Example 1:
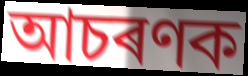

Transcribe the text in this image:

আচৰণক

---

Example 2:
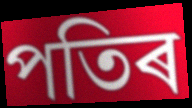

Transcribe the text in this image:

পতিৰ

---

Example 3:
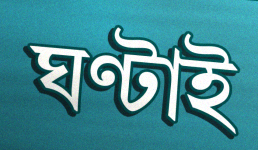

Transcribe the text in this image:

ঘণ্টাই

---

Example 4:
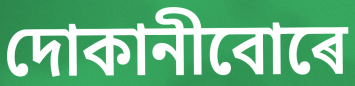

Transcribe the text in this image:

দোকানীবোৰে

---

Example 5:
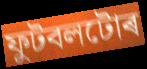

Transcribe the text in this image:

ফুটবলটোৰ